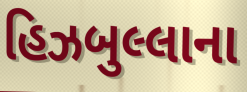
હિઝબુલ્લાના